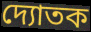
দ্যোতক